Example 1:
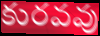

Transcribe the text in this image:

కురవవు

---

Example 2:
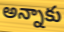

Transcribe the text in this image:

అన్నాకు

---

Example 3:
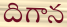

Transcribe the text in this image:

దిగాన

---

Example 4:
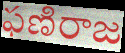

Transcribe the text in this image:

ఫణిరాజ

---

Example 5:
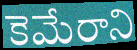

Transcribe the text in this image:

కెమేరాని